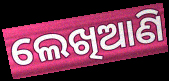
ଲେଖିଆଣି